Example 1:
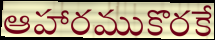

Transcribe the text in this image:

ఆహారముకొరకే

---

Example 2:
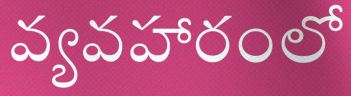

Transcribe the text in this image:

వ్యవహారంలో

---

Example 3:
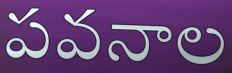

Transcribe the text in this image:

పవనాల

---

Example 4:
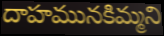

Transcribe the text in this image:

దాహమునకిమ్మని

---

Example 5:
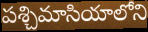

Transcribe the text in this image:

పశ్చిమాసియాలోని